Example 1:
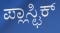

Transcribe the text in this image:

ಪ್ಲಾಸ್ಟಿಕ್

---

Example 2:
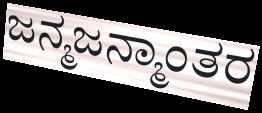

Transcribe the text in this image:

ಜನ್ಮಜನ್ಮಾಂತರ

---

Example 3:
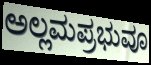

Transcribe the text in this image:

ಅಲ್ಲಮಪ್ರಭುವೂ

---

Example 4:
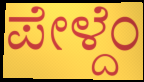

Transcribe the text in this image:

ಪೇಳ್ದೆಂ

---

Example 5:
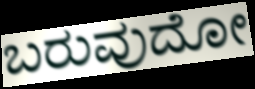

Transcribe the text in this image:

ಬರುವುದೋ